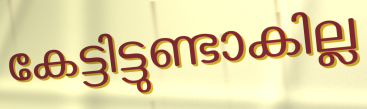
കേട്ടിട്ടുണ്ടാകില്ല